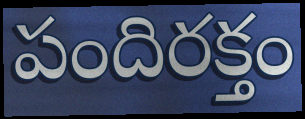
పందిరక్తం